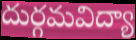
దుర్గమవిద్యా